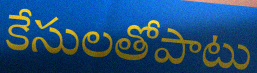
కేసులతోపాటు